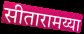
सीतारामय्या